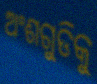
ଅଂଶଗୁଡିକୁ